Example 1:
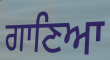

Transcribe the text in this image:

ਗਾਣਿਆ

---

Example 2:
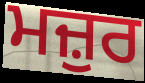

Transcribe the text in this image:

ਮਜ਼ੁਰ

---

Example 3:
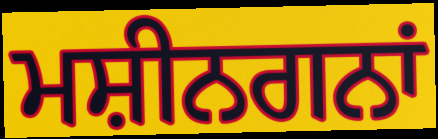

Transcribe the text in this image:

ਮਸ਼ੀਨਗਨਾਂ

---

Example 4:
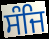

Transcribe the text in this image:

ਸੰਜਿ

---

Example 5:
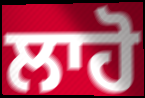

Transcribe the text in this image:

ਲਾਹੋ